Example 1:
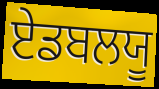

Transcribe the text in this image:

ਏਡਬਲਯੂ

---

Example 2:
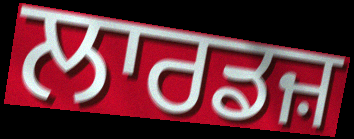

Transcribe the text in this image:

ਲਾਰਡਜ਼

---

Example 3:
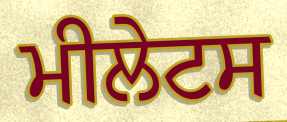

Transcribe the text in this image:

ਮੀਲੇਟਸ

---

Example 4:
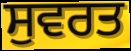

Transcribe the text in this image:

ਸੁਵਰਤ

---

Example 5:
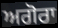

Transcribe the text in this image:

ਅਗੋਰਾ